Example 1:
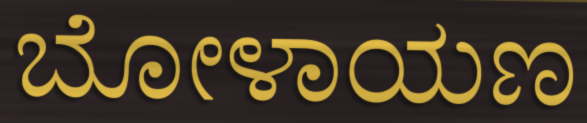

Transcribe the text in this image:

ಬೋಳಾಯಣ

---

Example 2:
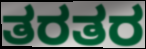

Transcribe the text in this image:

ತರತರ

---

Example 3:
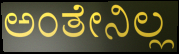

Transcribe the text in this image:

ಅಂತೇನಿಲ್ಲ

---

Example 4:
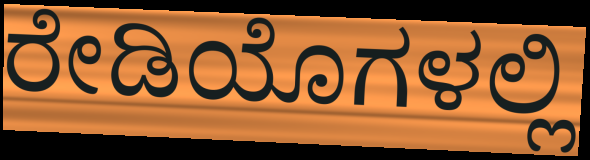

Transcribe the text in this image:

ರೇಡಿಯೊಗಳಲ್ಲಿ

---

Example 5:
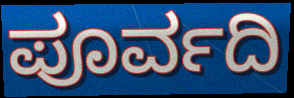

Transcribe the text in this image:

ಪೂರ್ವದಿ